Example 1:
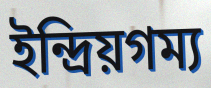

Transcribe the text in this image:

ইন্দ্রিয়গম্য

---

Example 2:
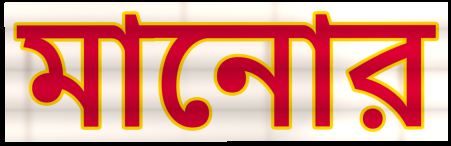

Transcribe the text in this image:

মানোর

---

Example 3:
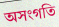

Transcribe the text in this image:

অসংগতি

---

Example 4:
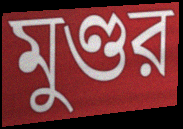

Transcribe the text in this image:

মুণ্ডর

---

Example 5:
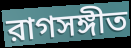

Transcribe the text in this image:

রাগসঙ্গীত